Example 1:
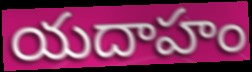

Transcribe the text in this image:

యదాహం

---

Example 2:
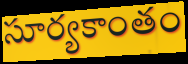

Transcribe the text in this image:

సూర్యకాంతం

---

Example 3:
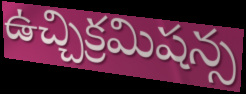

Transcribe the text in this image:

ఉచ్చిక్రమిషన్స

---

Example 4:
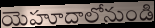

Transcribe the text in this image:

యెహూదాలోనుండి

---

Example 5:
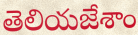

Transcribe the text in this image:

తెలియజేశాం